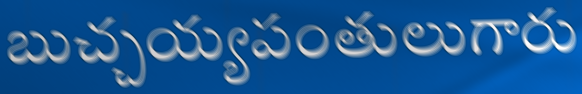
బుచ్చయ్యపంతులుగారు